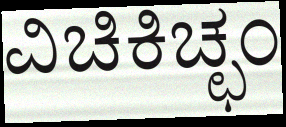
ವಿಚಿಕಿಚ್ಛಂ